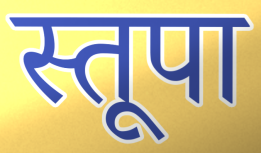
स्तूपा